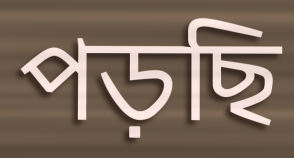
পড়ছি